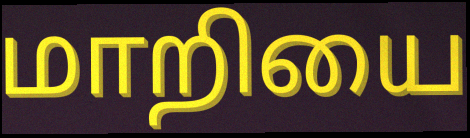
மாறியை